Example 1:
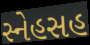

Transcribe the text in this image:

સ્નેહસહ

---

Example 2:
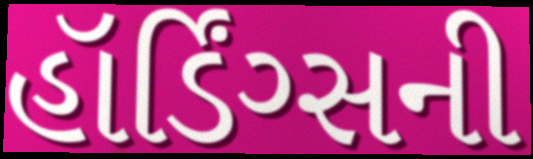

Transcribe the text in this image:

હૉર્ડિંગ્સની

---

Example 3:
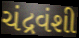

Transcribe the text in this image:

ચંદ્રવંશી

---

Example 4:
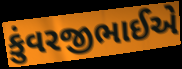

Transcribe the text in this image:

કુંવરજીભાઈએ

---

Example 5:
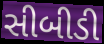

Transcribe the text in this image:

સીબીડી